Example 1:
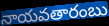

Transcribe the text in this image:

నాయవతారంబు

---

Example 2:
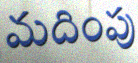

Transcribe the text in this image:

మదింపు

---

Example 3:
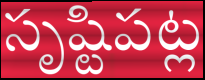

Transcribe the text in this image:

సృష్టిపట్ల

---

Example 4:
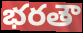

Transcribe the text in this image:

భరతౌ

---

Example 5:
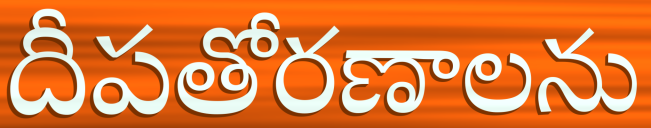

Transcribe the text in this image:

దీపతోరణాలను